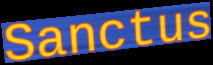
Sanctus